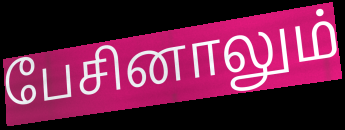
பேசினாலும்